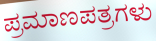
ಪ್ರಮಾಣಪತ್ರಗಳು